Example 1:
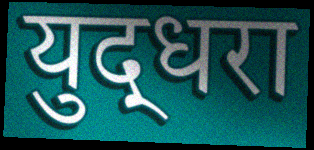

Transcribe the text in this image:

युद्धरा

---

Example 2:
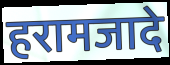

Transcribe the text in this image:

हरामजादे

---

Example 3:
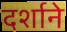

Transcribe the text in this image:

दर्शाने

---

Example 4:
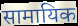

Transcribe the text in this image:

सामायिक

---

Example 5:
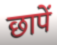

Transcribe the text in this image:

छापें